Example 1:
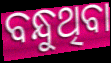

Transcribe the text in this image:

ବନ୍ଧୁଥିବା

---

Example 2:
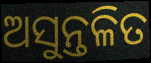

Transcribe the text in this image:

ଅସୁନ୍ତଳିତ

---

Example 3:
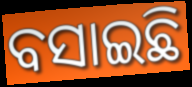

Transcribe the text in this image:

ବସାଇଛି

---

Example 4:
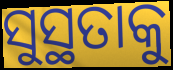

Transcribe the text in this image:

ସୁସ୍ଥତାକୁ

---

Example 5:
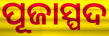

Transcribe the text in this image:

ପୂଜାସ୍ପଦ